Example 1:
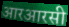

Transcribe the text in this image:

आरआरसी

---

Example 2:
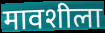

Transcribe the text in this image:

मावशीला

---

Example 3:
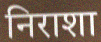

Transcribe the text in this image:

निराशा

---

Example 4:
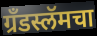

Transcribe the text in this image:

ग्रँडस्लॅमचा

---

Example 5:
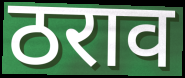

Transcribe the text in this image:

ठराव